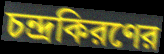
চন্দ্রকিরণের